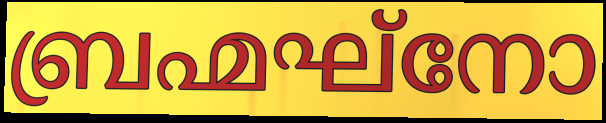
ബ്രഹ്മഘ്നോ